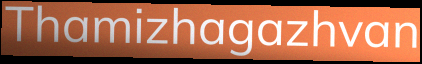
Thamizhagazhvan